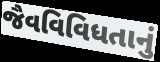
જૈવવિવિધતાનું